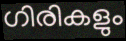
ഗിരികളും